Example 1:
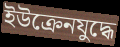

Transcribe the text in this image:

ইউক্রেনযুদ্ধে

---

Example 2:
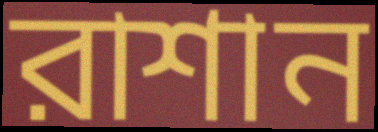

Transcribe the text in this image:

রাশান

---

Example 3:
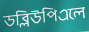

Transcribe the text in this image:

ডব্লিউপিএলে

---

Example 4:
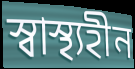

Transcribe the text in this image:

স্বাস্থ্যহীন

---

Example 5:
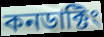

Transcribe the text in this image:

কনডাক্টিং